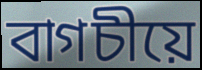
বাগচীয়ে